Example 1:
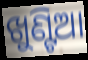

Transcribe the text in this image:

ଖୁଣ୍ଟିଆ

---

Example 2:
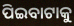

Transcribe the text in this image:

ପିଇବାଟାକୁ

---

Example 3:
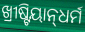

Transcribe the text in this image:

ଖ୍ରୀଷ୍ଟିୟାନ୍‌ଧର୍ମ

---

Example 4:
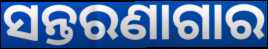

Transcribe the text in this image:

ସନ୍ତରଣାଗାର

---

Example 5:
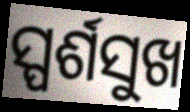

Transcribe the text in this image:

ସ୍ପର୍ଶସୁଖ